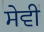
ਸੇਵੀ